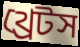
থ্রেটস